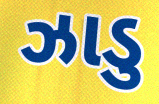
ઝાડુ